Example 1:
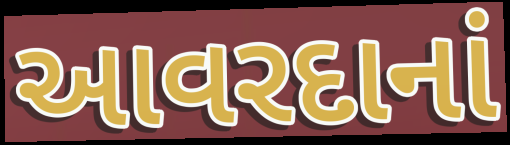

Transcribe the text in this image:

આવરદાનાં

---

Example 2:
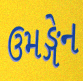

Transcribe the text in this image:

ઉમઙ્ગેન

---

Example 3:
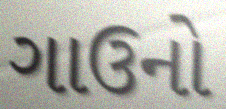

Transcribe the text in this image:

ગાઉનો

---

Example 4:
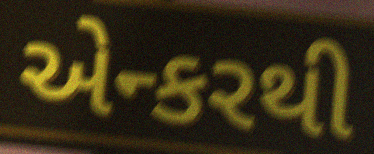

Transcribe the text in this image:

એન્કરથી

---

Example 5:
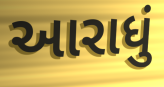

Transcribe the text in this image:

આરાધું